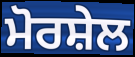
ਮੋਰਸ਼ੇਲ